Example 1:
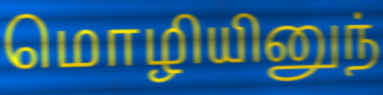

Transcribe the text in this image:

மொழியினுந்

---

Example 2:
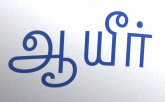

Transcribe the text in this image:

ஆயீர்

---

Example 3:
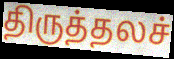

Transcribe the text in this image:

திருத்தலச்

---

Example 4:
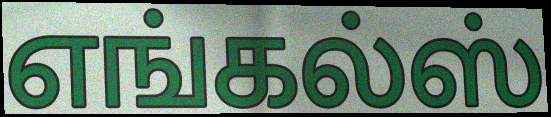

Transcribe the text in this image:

எங்கல்ஸ்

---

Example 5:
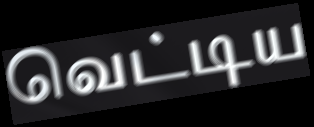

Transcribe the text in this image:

வெட்டிய